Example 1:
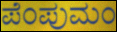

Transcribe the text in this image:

ಪೆಂಪುಮಂ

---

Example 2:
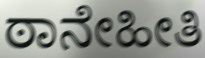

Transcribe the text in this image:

ಠಾನೇಹೀತಿ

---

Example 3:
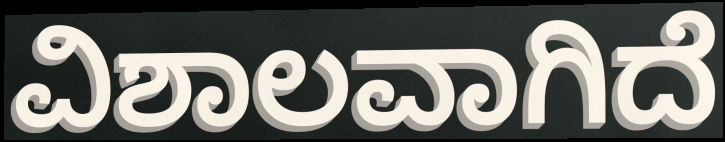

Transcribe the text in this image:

ವಿಶಾಲವಾಗಿದೆ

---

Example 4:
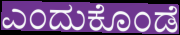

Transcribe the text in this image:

ಎಂದುಕೊಂಡೆ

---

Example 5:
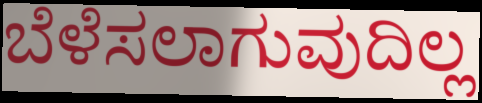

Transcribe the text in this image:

ಬೆಳೆಸಲಾಗುವುದಿಲ್ಲ